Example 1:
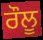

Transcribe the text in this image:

ਰੌਲੂ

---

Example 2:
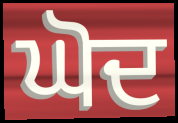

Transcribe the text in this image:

ਘੋਦ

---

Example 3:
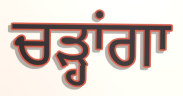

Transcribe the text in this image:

ਚੜ੍ਹਾਂਗਾ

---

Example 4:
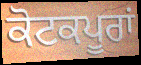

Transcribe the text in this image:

ਕੋਟਕਪੂਰਾਂ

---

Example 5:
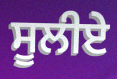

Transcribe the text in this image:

ਸੂਲੀਏ